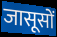
जासूसों